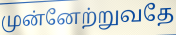
முன்னேற்றுவதே